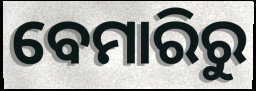
ବେମାରିରୁ